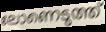
ലോണെടുത്ത്